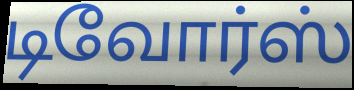
டிவோர்ஸ்